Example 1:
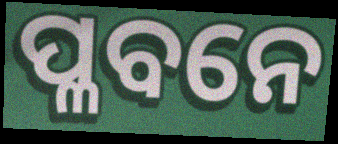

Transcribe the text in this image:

ପ୍ଳବନେ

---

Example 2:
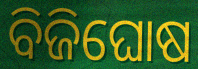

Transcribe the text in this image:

ବିଜିଘୋଷ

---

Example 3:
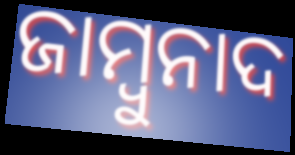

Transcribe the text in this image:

ଜାମ୍ବୁନାଦ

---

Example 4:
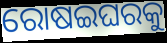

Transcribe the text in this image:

ରୋଷଇଘରକୁ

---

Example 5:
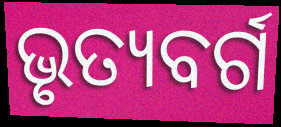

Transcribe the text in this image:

ଭୃତ୍ୟବର୍ଗ